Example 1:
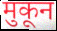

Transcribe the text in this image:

मुकून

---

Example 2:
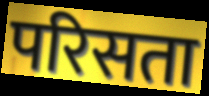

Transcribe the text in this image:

परिसता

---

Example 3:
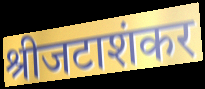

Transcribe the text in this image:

श्रीजटाशंकर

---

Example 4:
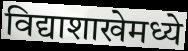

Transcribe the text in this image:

विद्याशाखेमध्ये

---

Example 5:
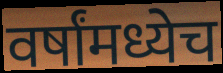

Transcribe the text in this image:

वर्षांमध्येच